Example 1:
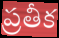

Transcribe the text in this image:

ప్రతీక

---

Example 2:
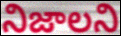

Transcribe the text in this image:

నిజాలని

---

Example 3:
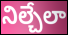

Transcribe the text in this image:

నిల్చేలా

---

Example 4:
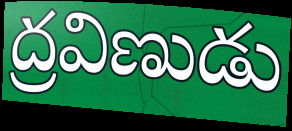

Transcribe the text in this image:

ద్రవిణుడు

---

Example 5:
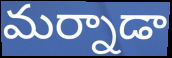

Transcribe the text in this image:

మర్నాడా